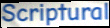
Scriptural